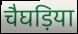
चैघड़िया